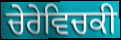
ਚੇਰੇਵਿਚਕੀ